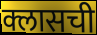
क्‍लासची